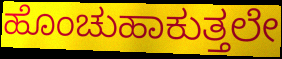
ಹೊಂಚುಹಾಕುತ್ತಲೇ